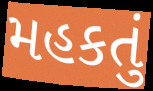
મહકતું